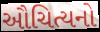
ઔચિત્યનો